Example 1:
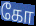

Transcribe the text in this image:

கோ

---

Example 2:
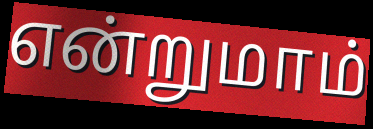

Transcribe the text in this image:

என்றுமாம்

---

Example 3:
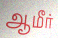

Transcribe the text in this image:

ஆமீர்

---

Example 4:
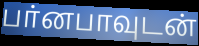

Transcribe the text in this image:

பர்னபாவுடன்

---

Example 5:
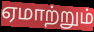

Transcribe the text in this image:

ஏமாற்றும்